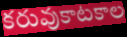
కరువుకాటకాల